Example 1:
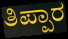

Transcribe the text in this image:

ತಿಪ್ಪಾರ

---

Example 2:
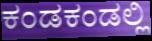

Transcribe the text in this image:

ಕಂಡಕಂಡಲ್ಲಿ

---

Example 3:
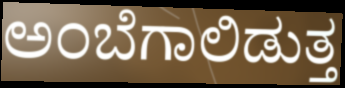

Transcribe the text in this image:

ಅಂಬೆಗಾಲಿಡುತ್ತ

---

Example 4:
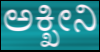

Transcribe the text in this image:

ಅಕ್ಖೀನಿ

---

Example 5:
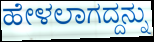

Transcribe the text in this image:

ಹೇಳಲಾಗದ್ದನ್ನು